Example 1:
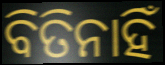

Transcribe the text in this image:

ବିତିନାହିଁ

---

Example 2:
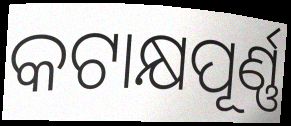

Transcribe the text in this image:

କଟାକ୍ଷପୂର୍ଣ୍ଣ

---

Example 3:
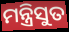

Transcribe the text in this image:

ମନ୍ତ୍ରିସୁତ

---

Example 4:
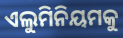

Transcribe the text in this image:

ଏଲୁମିନିୟମକୁ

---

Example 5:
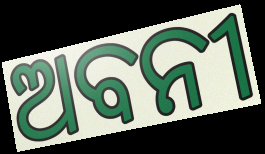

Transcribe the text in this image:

ଅବନୀ